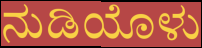
ನುಡಿಯೊಳು